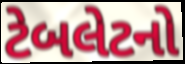
ટેબલેટનો